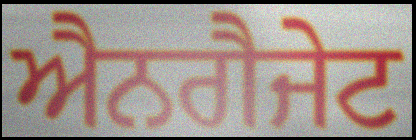
ਐਨਗੈਜੇਟ